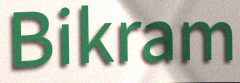
Bikram